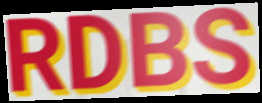
RDBS